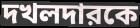
দখলদারকে